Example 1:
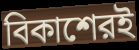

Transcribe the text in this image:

বিকাশেরই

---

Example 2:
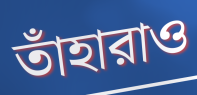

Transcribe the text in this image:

তাঁহারাও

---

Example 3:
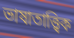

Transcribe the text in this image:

ভাষাতাত্ত্বিক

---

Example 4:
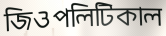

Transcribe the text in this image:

জিওপলিটিকাল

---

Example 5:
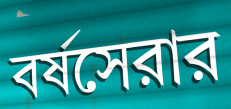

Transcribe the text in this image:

বর্ষসেরার